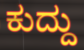
ಕುದ್ದು